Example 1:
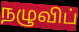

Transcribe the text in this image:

நழுவிப்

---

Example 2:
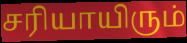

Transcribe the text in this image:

சரியாயிரும்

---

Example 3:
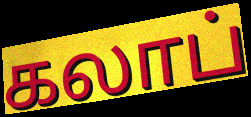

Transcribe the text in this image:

கலாப்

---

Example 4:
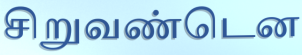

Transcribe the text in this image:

சிறுவண்டென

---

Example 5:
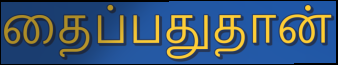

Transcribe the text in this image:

தைப்பதுதான்